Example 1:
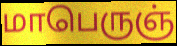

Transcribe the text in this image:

மாபெருஞ்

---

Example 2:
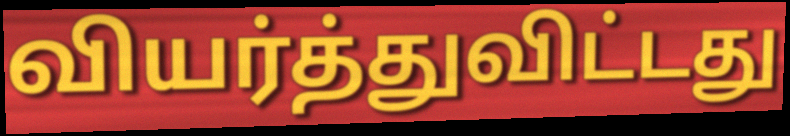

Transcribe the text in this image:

வியர்த்துவிட்டது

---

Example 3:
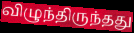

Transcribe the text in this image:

விழுந்திருந்தது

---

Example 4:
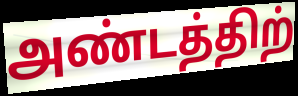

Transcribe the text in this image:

அண்டத்திற்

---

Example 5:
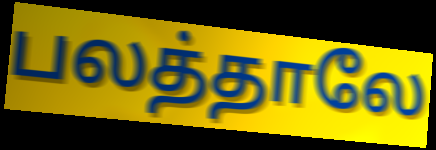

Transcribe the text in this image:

பலத்தாலே